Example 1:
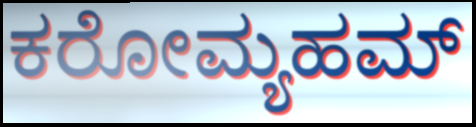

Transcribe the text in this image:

ಕರೋಮ್ಯಹಮ್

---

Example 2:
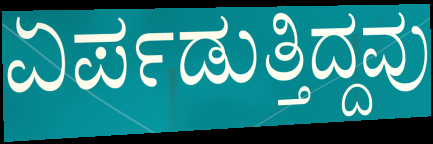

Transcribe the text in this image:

ಏರ್ಪಡುತ್ತಿದ್ದವು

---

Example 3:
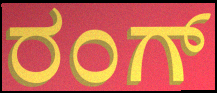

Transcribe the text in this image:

ರಂಗ್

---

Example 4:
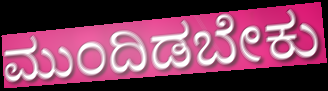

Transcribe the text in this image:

ಮುಂದಿಡಬೇಕು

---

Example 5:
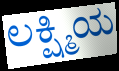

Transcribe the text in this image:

ಲಕ್ಷ್ಮಿಯ